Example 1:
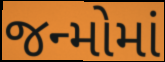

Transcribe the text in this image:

જન્મોમાં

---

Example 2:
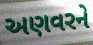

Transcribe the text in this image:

અણવરને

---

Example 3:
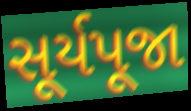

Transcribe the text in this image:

સૂર્યપૂજા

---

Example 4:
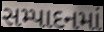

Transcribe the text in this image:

સમ્પાદનમાં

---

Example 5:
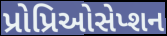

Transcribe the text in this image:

પ્રોપ્રિઓસેપ્શન